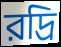
রদ্রি